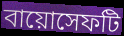
বায়োসেফটি